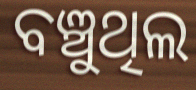
ବଞ୍ଚୁଥିଲ